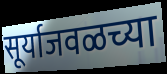
सूर्याजवळच्या